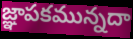
జ్ఞాపకమున్నదా